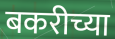
बकरीच्या